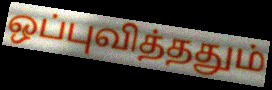
ஒப்புவித்ததும்